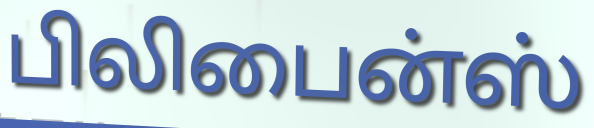
பிலிபைன்ஸ்